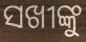
ସଖୀଙ୍କୁ